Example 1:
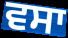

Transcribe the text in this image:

ਵਸਾ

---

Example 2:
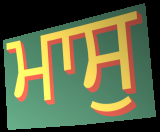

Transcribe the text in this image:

ਮਾਸੁ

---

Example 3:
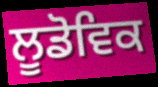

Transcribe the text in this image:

ਲੂਡੋਵਿਕ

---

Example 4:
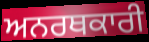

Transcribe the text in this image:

ਅਨਰਥਕਾਰੀ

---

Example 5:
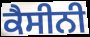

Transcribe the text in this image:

ਕੈਸੀਨੀ